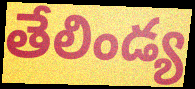
తేలిండ్య